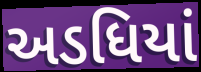
અડધિયાં